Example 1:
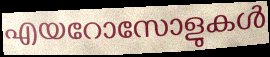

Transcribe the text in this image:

എയറോസോളുകൾ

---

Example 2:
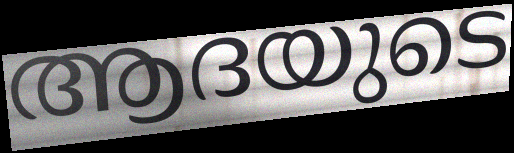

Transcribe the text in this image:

ആദയുടെ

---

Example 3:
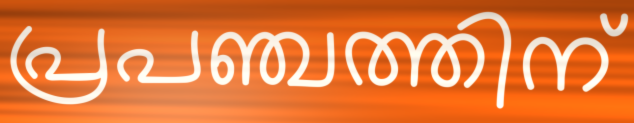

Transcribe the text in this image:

പ്രപഞ്ചത്തിന്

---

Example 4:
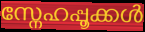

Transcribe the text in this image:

സ്നേഹപ്പൂക്കൾ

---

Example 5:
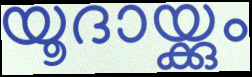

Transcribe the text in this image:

യൂദായ്ക്കും